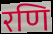
रणि